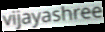
vijayashree